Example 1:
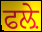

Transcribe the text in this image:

ਫਲ਼ੇ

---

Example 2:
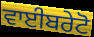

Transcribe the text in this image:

ਵਾਈਬਰੇਟੋ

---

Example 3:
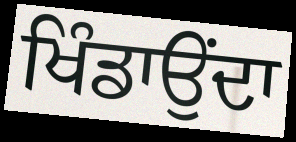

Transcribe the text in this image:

ਖਿੰਡਾਉਂਦਾ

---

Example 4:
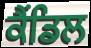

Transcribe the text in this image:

ਕੈਂਡਿਲ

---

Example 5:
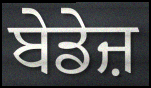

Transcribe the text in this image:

ਬੇਡੇਜ਼